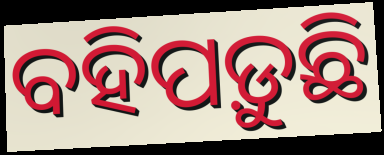
ବହିପଡ଼ୁଛି